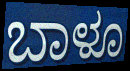
ಬಾಳೂ